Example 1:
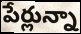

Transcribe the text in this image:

పేర్లున్నా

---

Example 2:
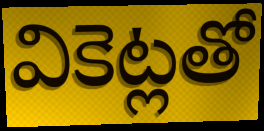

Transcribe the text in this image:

వికెట్లతో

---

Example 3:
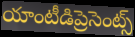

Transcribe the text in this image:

యాంటీడిప్రెసెంట్స్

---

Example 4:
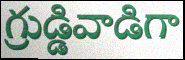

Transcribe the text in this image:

గ్రుడ్డివాడిగా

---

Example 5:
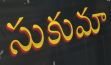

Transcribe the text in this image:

సుకుమా